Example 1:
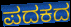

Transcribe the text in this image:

ಪದಕದ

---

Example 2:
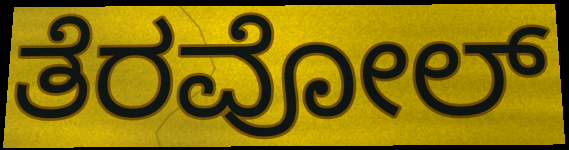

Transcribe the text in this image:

ತೆರವೋಲ್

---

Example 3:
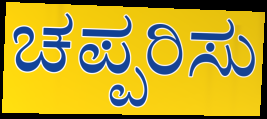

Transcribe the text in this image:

ಚಪ್ಪರಿಸು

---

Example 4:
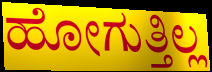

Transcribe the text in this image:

ಹೋಗುತ್ತಿಲ್ಲ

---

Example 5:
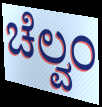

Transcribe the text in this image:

ಚೆಲ್ವಂ